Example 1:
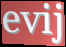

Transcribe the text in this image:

evij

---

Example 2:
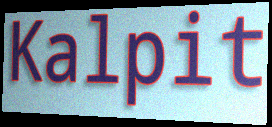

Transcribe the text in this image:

Kalpit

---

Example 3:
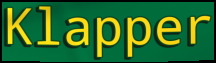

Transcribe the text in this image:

Klapper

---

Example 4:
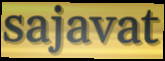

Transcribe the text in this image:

sajavat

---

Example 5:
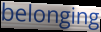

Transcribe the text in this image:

belonging